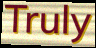
Truly